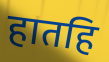
हातहि